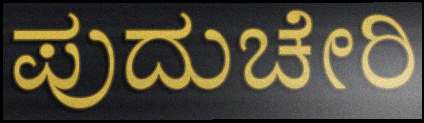
ಪುದುಚೇರಿ